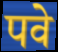
पवे